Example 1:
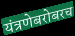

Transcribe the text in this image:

यंत्रणेबरोबरच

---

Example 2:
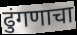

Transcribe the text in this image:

ढुंगणाचा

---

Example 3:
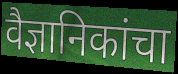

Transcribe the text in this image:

वैज्ञानिकांचा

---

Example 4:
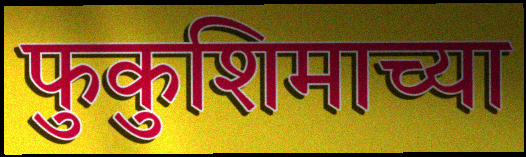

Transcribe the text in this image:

फुकुशिमाच्या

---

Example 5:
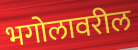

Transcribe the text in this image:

भगोलावरील